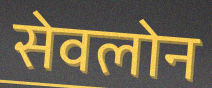
सेवलोन